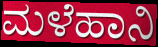
ಮಳೆಹಾನಿ